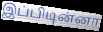
இப்பிடின்னா